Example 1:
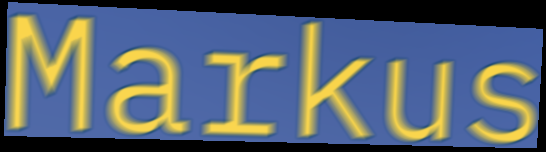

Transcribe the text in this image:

Markus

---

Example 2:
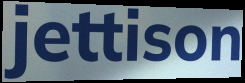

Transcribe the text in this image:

jettison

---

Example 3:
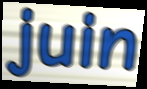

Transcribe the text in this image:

juin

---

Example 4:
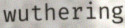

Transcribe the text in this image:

wuthering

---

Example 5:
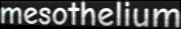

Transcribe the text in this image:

mesothelium